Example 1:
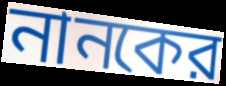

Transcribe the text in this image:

নানকের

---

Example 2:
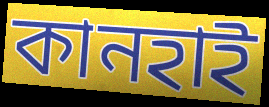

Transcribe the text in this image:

কানহাই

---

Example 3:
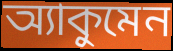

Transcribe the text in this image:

অ্যাকুমেন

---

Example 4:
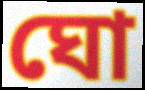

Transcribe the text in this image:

ঘো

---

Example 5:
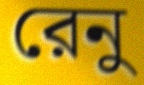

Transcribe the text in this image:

রেনু